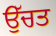
ਉੱਚਤ